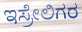
ಇಸ್ರೇಲಿಗರ